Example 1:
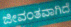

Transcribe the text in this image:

ಜೀವಂತವಾಗಿದೆ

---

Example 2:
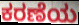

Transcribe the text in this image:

ಕರಣೆಯ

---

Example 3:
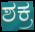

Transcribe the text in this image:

ಶಕ್ರ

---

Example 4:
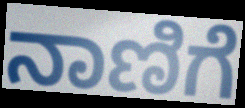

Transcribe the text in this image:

ನಾಣಿಗೆ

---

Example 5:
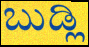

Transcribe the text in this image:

ಬುಡ್ಲಿ